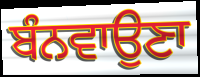
ਬੰਨਵਾਉਣਾ